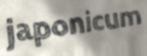
japonicum